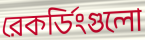
রেকর্ডিংগুলো